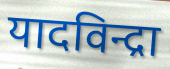
यादविन्द्रा